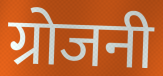
ग्रोजनी